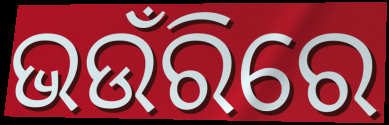
ଭଉଁରିରେ